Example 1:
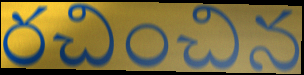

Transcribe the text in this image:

రచించిన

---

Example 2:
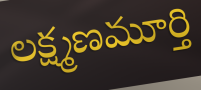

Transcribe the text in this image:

లక్ష్మణమూర్తి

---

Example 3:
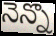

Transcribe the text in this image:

నెన్నొ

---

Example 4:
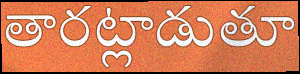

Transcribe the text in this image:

తారట్లాడుతూ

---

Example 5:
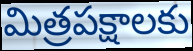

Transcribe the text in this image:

మిత్రపక్షాలకు